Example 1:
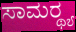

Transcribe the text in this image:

ಸಾಮರ್‍ಥ್ಯ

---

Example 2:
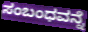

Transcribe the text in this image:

ಸಂಬಂಧವನ್ನೆ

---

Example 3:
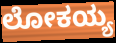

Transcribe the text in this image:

ಲೋಕಯ್ಯ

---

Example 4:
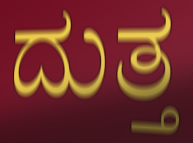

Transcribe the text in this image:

ದುತ್ತ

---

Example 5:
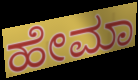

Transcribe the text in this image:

ಹೇಮಾ